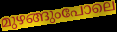
മുഴങ്ങുംപോലെ